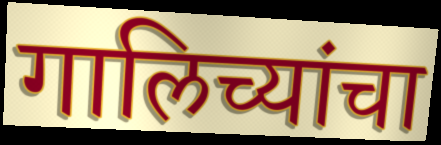
गालिच्यांचा